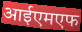
आईएमएफ